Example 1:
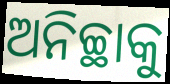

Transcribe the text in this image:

ଅନିଚ୍ଛାକୁ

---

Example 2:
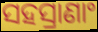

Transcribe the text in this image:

ସହସ୍ରାଣାଂ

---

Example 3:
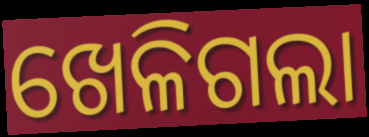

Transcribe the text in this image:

ଖେଳିଗଲା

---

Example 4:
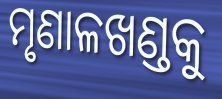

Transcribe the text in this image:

ମୃଣାଳଖଣ୍ଡକୁ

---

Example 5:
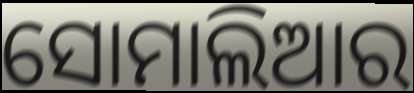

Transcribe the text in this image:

ସୋମାଲିଆର